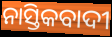
ନାସ୍ତିକବାଦୀ